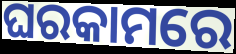
ଘରକାମରେ